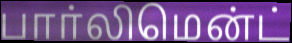
பார்லிமென்ட்